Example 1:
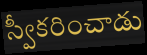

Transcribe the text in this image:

స్వీకరించాడు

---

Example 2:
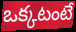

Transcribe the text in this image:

ఒక్కటంటే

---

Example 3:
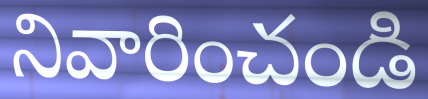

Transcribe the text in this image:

నివారించండి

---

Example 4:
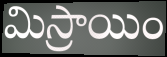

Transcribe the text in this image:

మిస్రాయిం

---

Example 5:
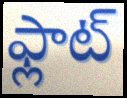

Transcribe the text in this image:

ఫ్లాట్